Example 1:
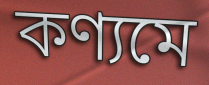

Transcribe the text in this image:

কণ্যমে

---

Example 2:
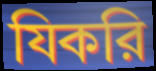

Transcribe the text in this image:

যিকরি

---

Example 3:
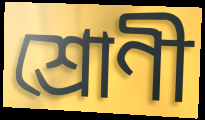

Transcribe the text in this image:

শ্রোণী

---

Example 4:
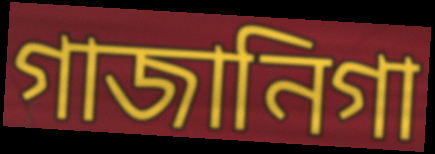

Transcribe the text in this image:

গাজানিগা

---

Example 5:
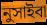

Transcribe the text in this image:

নুসাইবা